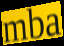
mba